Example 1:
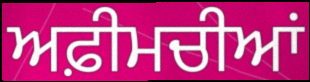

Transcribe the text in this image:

ਅਫ਼ੀਮਚੀਆਂ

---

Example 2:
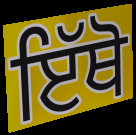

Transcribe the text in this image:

ਇੱਥੋ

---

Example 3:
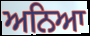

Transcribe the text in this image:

ਅਨਿਆ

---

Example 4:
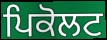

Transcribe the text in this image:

ਪਿਕੋਲਟ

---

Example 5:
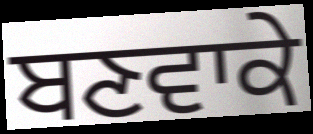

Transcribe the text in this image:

ਬਣਵਾਕੇ